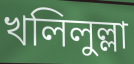
খলিলুল্লা